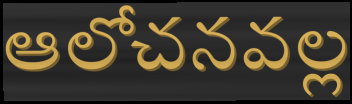
ఆలోచనవల్ల